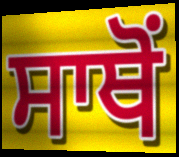
ਸਾਥੋਂ